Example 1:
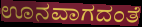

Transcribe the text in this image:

ಊನವಾಗದಂತೆ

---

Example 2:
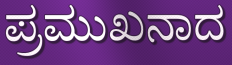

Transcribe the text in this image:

ಪ್ರಮುಖನಾದ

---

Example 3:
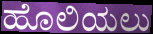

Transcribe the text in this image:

ಹೊಲಿಯಲು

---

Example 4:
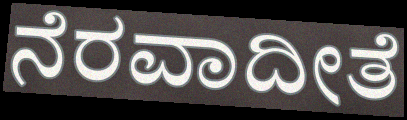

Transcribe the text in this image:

ನೆರವಾದೀತೆ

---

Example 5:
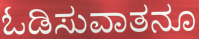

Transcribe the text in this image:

ಓಡಿಸುವಾತನೂ